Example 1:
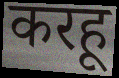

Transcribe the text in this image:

करहू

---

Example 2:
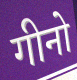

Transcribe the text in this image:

गीनो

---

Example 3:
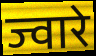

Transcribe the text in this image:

ज्वारे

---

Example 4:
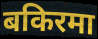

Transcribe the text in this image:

बकिरमा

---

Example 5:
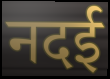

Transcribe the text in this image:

नदई